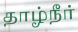
தாழ்நீர்